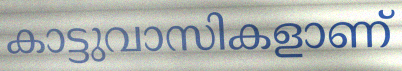
കാട്ടുവാസികളാണ്